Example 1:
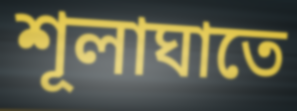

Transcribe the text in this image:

শূলাঘাতে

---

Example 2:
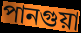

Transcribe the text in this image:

পানগুয়া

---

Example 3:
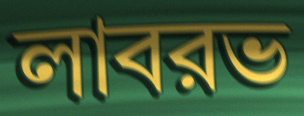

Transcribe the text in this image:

লাবরভ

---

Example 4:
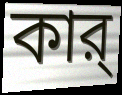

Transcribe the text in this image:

কার্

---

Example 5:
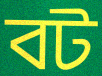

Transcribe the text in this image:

বট